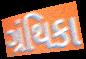
ગ્રંથિકા